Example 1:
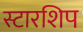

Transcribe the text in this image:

स्टारशिप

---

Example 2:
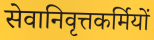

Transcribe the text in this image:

सेवानिवृत्तकर्मियों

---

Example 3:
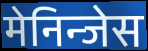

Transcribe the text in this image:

मेनिन्जेस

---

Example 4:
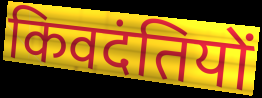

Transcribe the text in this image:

किवदंतियों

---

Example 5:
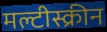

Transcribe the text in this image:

मल्टीस्क्रीन